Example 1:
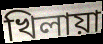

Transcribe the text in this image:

খিলায়া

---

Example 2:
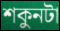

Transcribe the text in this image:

শকুনটা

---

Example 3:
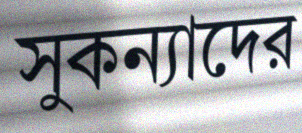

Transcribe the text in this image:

সুকন্যাদের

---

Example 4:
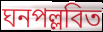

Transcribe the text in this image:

ঘনপল্লবিত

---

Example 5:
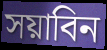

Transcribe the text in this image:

সয়াবিন